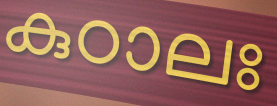
കുഠാലഃ